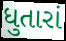
ધુતારાં